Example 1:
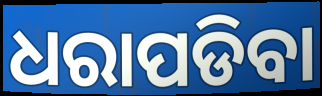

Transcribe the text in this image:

ଧରାପଡିବା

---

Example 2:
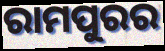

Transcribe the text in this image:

ରାମପୁରର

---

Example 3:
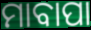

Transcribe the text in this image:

ମାବାପା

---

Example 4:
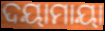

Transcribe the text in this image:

ଦୟାମାୟା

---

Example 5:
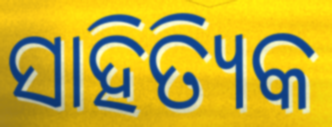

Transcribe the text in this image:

ସାହିତ୍ୟିକ